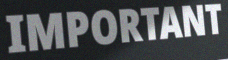
IMPORTANT